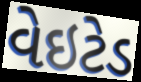
વેઇટેડ